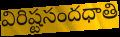
విరిష్టసందధాతి